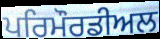
ਪਰਿਮੌਰਡੀਅਲ